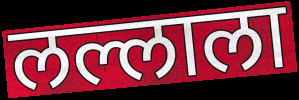
लल्लाला